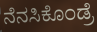
ನೆನಸಿಕೊಂಡ್ರೆ